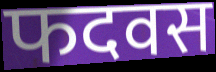
फदवस